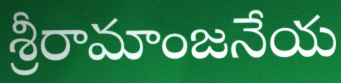
శ్రీరామాంజనేయ